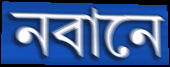
নবানে